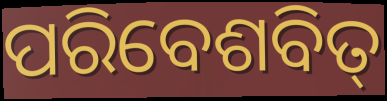
ପରିବେଶବିତ୍